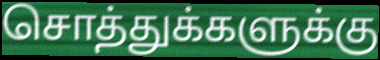
சொத்துக்களுக்கு